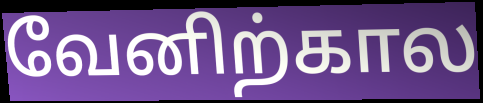
வேனிற்கால